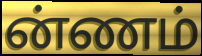
ன்ணம்